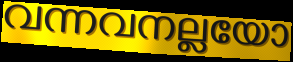
വന്നവനല്ലയോ